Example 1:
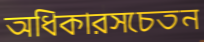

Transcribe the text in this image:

অধিকারসচেতন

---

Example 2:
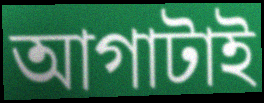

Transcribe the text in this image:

আগাটাই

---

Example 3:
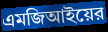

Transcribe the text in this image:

এমজিআইয়ের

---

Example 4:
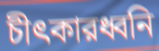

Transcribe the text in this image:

চীৎকারধ্বনি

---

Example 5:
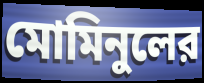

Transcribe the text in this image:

মোমিনুলের